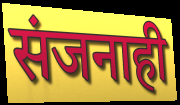
संजनाही